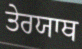
ਤੇਰਯਾਥ